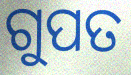
ଗୁପତ